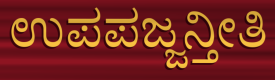
ಉಪಪಜ್ಜನ್ತೀತಿ